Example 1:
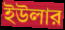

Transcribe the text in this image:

ইউলার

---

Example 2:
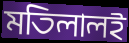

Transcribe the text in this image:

মতিলালই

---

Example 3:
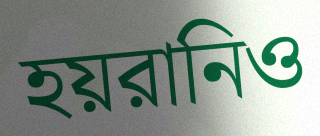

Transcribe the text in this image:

হয়রানিও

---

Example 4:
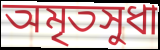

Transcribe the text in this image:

অমৃতসুধা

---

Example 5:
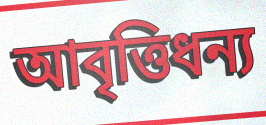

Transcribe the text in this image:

আবৃত্তিধন্য